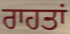
ਰਾਹਤਾਂ